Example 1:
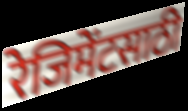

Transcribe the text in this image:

रेजिमेंटसाठी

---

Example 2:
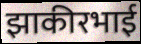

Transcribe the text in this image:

झाकीरभाई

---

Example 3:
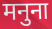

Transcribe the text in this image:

मनुना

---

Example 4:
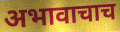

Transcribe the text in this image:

अभावाचाच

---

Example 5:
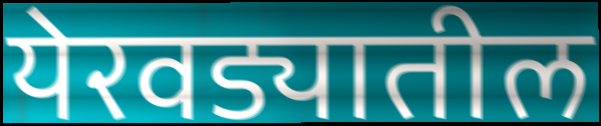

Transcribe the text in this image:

येरवड्यातील